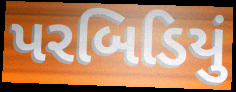
પરબિડિયું